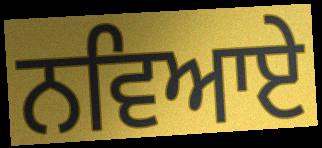
ਨਵਿਆਏ